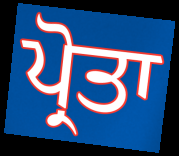
ਪ੍ਰੋਤਾ